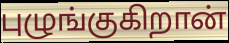
புழுங்குகிறான்